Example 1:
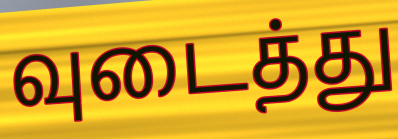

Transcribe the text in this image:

வுடைத்து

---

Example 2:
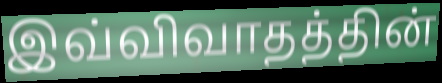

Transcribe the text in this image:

இவ்விவாதத்தின்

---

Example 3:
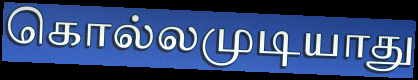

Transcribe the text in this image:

கொல்லமுடியாது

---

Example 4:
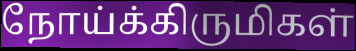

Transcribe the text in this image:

நோய்க்கிருமிகள்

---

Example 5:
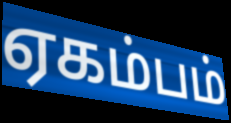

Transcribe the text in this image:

ஏகம்பம்